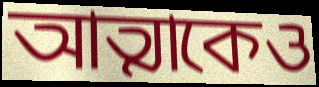
আত্মাকেও